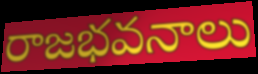
రాజభవనాలు